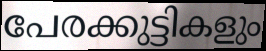
പേരക്കുട്ടികളും